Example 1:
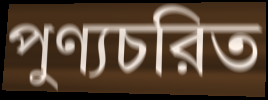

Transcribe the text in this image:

পুণ্যচরিত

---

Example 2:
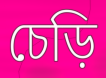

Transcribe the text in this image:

চেড়ি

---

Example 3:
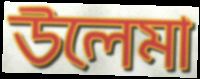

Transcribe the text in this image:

উলেমা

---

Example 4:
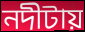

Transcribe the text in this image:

নদীটায়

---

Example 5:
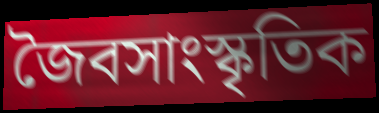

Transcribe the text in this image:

জৈবসাংস্কৃতিক